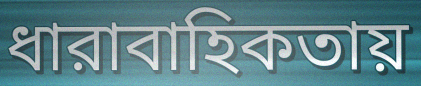
ধারাবাহিকতায়